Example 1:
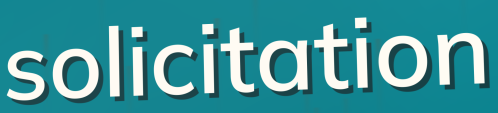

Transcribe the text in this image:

solicitation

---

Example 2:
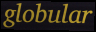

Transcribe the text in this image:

globular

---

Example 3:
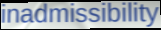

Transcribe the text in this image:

inadmissibility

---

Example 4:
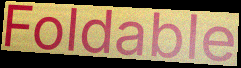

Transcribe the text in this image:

Foldable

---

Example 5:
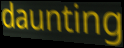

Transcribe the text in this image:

daunting